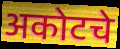
अकोटचे